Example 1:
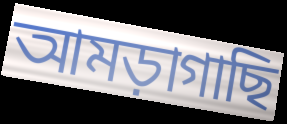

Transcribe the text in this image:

আমড়াগাছি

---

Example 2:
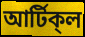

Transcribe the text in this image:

আর্টিক্‌ল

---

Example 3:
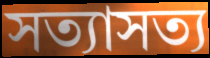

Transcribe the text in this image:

সত্যাসত্য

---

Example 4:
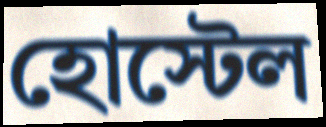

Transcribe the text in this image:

হোস্টেল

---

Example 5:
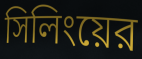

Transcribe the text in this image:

সিলিংয়ের